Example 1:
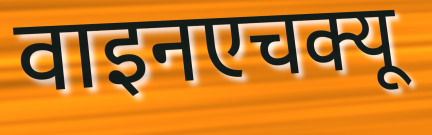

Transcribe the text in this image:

वाइनएचक्यू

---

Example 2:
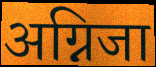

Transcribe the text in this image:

अग्निजा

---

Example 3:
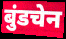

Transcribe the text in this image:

बुंडचेन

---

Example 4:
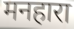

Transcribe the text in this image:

मनहारा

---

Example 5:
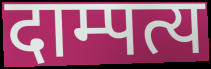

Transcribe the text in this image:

दाम्पत्य